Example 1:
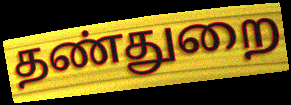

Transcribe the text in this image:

தண்துறை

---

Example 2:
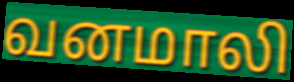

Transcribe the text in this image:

வனமாலி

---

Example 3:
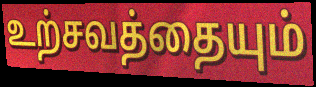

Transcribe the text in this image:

உற்சவத்தையும்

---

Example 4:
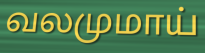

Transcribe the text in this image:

வலமுமாய்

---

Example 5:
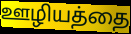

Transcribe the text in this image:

ஊழியத்தை